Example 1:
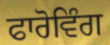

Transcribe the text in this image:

ਫਾਰੋਵਿੰਗ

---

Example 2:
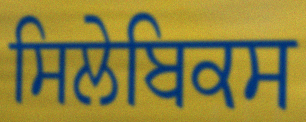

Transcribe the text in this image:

ਸਿਲੇਬਿਕਸ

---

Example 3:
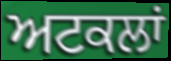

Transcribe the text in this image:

ਅਟਕਲਾਂ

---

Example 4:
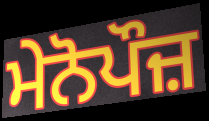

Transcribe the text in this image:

ਮੇਨੋਪੌਜ਼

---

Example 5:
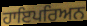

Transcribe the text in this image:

ਹਾਇਪਰਿਅਨ